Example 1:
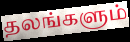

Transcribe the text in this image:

தலங்களும்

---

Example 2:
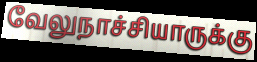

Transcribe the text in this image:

வேலுநாச்சியாருக்கு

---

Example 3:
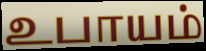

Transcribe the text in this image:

உபாயம்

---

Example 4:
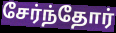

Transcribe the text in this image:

சேர்ந்தோர்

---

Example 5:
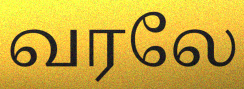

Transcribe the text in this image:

வரலே